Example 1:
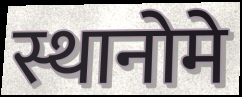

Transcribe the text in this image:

स्थानोमे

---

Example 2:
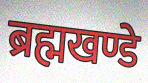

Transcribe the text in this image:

ब्रह्मखण्डे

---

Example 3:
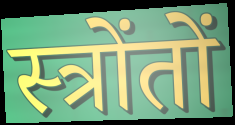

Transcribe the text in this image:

स्त्रोंतों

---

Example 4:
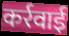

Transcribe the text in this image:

कर्रवाई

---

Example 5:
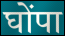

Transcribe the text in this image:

घोंपा